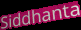
Siddhanta